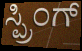
ಸ್ಪ್ರಿಂಗ್